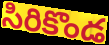
సిరికొండ